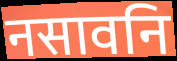
नसावनि